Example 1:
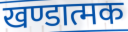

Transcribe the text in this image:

खण्डात्मक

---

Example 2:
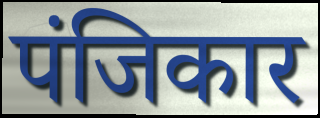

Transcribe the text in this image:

पंजिकार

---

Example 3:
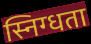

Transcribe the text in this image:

स्निग्धता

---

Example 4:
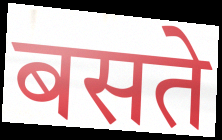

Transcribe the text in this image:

बसते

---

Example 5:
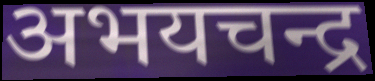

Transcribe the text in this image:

अभयचन्द्र